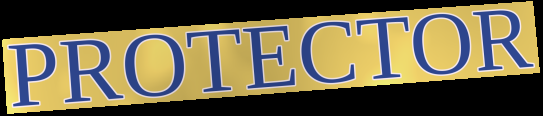
PROTECTOR